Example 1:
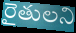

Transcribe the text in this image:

రైతులని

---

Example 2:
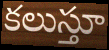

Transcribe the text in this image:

కలుస్తూ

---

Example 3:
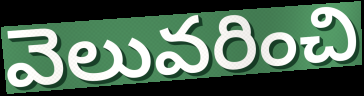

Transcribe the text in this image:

వెలువరించి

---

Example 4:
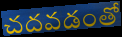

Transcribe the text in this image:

చదవడంతో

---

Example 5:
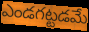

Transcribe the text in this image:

ఎండగట్టడమే